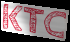
KTC